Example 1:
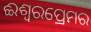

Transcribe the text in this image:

ଈଶ୍ୱରପ୍ରେମର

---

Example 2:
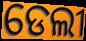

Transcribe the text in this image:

ଡେଲୀ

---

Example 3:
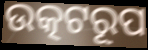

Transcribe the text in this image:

ଉତ୍କଟରୂପ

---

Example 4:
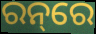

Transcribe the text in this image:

ରନ୍‌ରେ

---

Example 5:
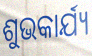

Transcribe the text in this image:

ଶୁଭକାର୍ଯ୍ୟ